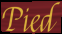
Pied